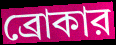
ব্রোকার